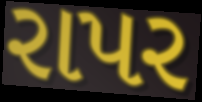
રાપર